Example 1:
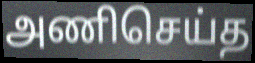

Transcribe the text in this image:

அணிசெய்த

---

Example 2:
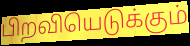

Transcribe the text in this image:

பிறவியெடுக்கும்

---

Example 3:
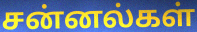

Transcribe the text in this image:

சன்னல்கள்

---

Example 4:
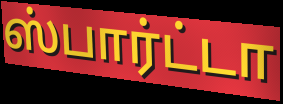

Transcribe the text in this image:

ஸ்பார்ட்டா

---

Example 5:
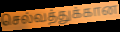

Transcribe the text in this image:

செல்வத்துக்கான